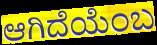
ಆಗಿದೆಯೆಂಬ